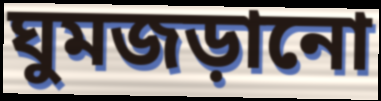
ঘুমজড়ানো